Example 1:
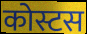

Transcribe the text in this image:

कोस्टस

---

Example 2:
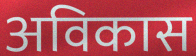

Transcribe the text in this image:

अविकास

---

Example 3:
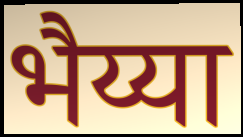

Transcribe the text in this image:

भैय्या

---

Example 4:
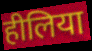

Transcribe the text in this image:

हीलिया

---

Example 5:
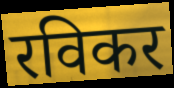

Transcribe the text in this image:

रविकर